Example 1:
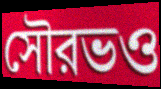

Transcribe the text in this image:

সৌরভও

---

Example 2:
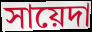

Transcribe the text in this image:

সায়েদা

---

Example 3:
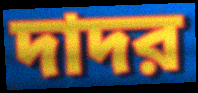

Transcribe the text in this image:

দাদর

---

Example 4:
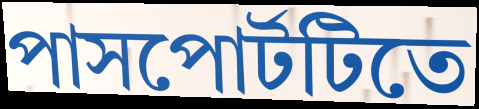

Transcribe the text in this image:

পাসপোর্টটিতে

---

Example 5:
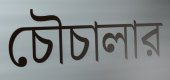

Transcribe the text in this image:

চৌচালার